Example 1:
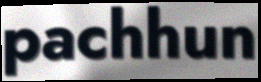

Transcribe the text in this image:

pachhun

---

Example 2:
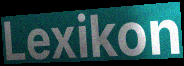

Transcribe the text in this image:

Lexikon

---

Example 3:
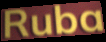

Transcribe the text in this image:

Ruba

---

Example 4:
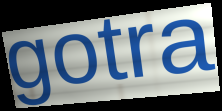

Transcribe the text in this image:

gotra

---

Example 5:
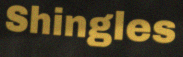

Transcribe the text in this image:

Shingles